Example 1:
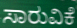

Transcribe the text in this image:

ಸಾರುವಿಕೆ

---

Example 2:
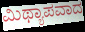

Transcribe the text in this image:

ಮಿಥ್ಯಾಪವಾದ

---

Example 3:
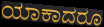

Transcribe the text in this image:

ಯಾಕಾದರೂ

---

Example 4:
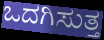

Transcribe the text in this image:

ಒದಗಿಸುತ್ತ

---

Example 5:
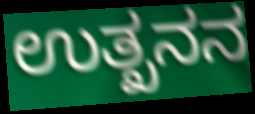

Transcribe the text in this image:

ಉತ್ಖನನ